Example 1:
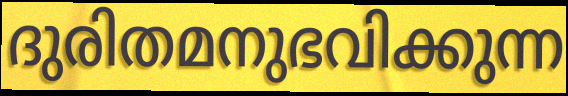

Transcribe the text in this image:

ദുരിതമനുഭവിക്കുന്ന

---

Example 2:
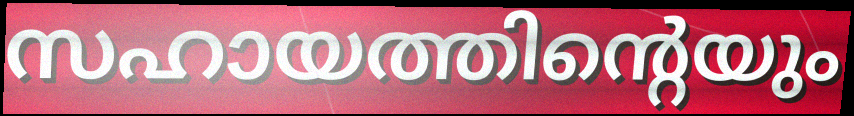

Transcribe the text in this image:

സഹായത്തിന്റെയും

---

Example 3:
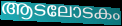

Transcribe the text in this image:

ആടലോടകം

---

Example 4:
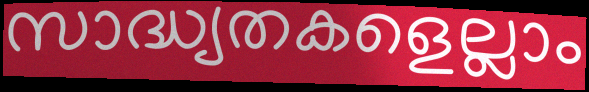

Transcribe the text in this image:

സാദ്ധ്യതകളെല്ലാം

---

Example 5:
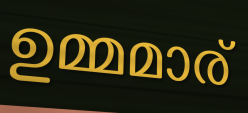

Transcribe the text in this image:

ഉമ്മമാര്